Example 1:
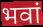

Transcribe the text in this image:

भवां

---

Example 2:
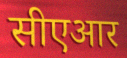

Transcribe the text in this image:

सीएआर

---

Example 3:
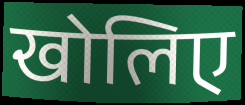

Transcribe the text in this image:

खोलिए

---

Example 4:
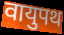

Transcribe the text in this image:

वायुपथ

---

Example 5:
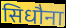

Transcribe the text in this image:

सिधौना